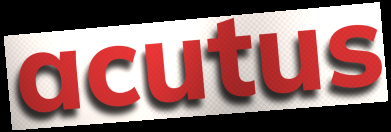
acutus